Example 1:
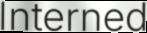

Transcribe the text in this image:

Interned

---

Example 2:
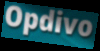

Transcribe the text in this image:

Opdivo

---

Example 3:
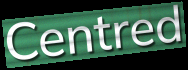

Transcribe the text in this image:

Centred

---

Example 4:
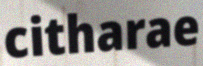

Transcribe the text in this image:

citharae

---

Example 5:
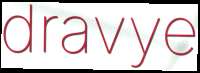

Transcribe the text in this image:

dravye